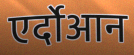
एर्दोआन